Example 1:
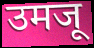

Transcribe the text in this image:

उमजू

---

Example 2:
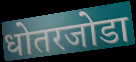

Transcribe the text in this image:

धोतरजोडा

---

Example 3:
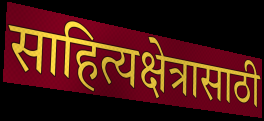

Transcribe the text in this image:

साहित्यक्षेत्रासाठी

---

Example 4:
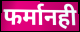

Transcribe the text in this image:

फर्मानही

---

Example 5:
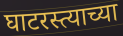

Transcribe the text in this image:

घाटरस्त्याच्या